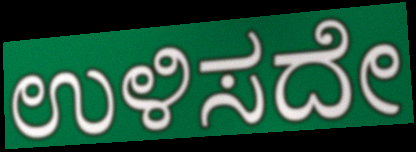
ಉಳಿಸದೇ